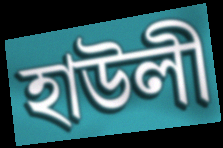
হাউলী